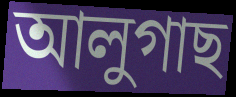
আলুগাছ